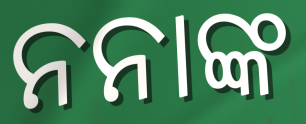
ନନାଙ୍କ